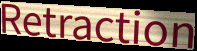
Retraction